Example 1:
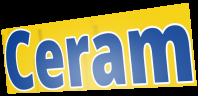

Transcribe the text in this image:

Ceram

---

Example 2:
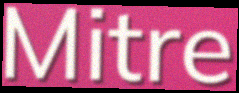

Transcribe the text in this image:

Mitre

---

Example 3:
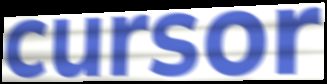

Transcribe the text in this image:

cursor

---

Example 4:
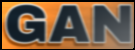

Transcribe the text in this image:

GAN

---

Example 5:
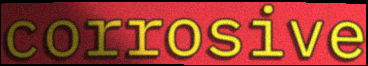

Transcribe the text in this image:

corrosive